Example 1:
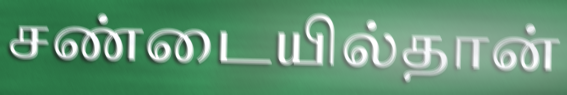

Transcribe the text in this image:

சண்டையில்தான்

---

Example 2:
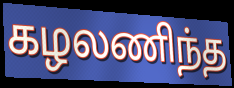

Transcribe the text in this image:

கழலணிந்த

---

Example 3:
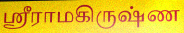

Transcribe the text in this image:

ஸ்ரீராமகிருஷ்ண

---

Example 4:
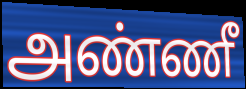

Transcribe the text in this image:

அண்ணீ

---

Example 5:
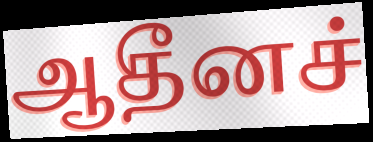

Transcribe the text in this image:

ஆதீனச்